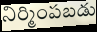
నిర్మింపబడు